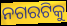
ନଗରଟିକୁ